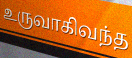
உருவாகிவந்த